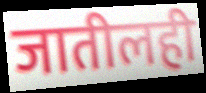
जातीलही